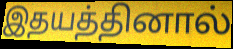
இதயத்தினால்